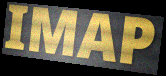
IMAP